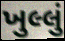
ખુલ્લું